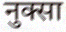
नुक्सा